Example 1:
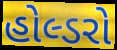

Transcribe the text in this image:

હોલ્ડરો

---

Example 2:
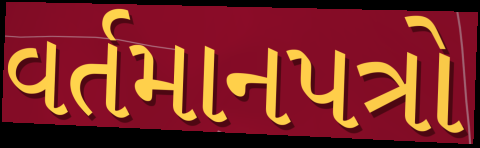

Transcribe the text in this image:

વર્તમાનપત્રો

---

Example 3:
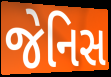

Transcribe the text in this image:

જેનિસ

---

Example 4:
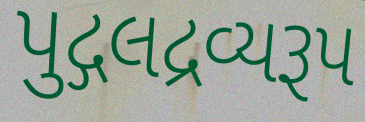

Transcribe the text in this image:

પુદ્ગલદ્રવ્યરૂપ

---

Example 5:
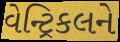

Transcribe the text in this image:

વેન્ટ્રિકલને